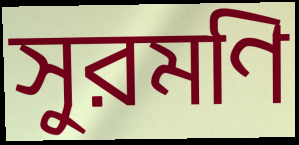
সুরমণি